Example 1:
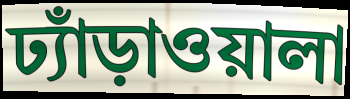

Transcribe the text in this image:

ঢ্যাঁড়াওয়ালা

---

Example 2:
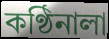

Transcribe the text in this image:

কণ্ঠিনালা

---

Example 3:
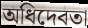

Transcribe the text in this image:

অধিদেবতা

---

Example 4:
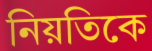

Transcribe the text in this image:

নিয়তিকে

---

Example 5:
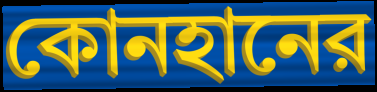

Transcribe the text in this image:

কোনহানের